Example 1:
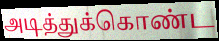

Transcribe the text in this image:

அடித்துக்கொண்ட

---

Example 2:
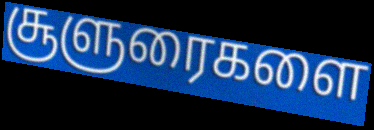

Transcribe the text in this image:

சூளுரைகளை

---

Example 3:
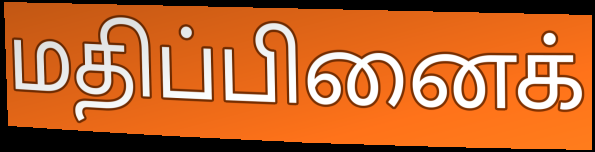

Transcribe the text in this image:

மதிப்பினைக்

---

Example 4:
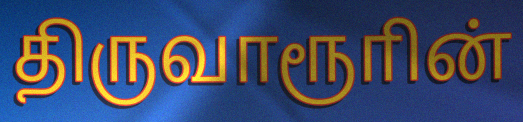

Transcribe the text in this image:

திருவாரூரின்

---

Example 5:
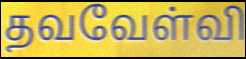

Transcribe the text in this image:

தவவேள்வி